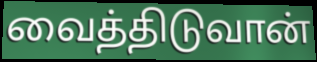
வைத்திடுவான்